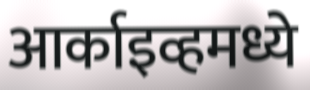
आर्काइव्हमध्ये